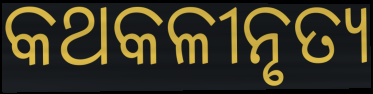
କଥକଳୀନୃତ୍ୟ